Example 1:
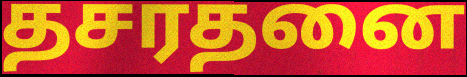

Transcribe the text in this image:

தசரதனை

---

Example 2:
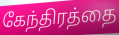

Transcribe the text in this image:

கேந்திரத்தை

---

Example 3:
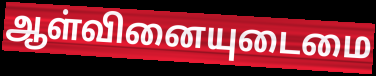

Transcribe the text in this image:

ஆள்வினையுடைமை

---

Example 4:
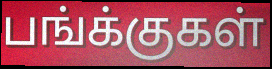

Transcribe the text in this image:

பங்க்குகள்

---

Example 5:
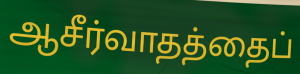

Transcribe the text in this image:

ஆசீர்வாதத்தைப்